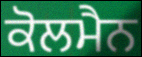
ਕੋਲਮੈਨ